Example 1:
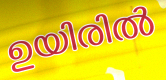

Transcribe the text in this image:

ഉയിരിൽ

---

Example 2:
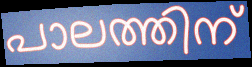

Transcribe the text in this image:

പാലത്തിന്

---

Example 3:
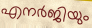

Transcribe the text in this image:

എനർജിയും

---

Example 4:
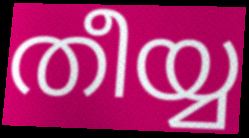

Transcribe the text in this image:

തീയ്യ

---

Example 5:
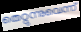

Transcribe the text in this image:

തെറ്റുന്നുവെന്ന്